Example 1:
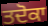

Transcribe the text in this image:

ਤਦੋਕਾ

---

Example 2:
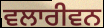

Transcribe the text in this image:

ਵਲਾਰੀਵਨ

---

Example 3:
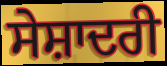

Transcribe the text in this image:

ਸੇਸ਼ਾਦਰੀ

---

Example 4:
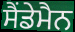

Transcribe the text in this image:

ਸੈਂਡੇਮੈਨ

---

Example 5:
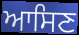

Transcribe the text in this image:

ਆਸਿਣ